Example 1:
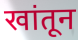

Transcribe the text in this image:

खांतून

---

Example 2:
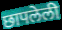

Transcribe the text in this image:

छापलेली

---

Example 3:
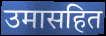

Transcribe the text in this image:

उमासहित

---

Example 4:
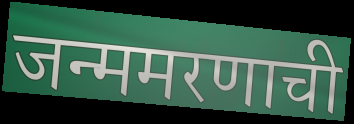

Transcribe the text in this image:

जन्ममरणाची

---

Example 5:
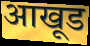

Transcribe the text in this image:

आखूड